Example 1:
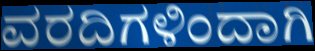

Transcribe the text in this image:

ವರದಿಗಳಿಂದಾಗಿ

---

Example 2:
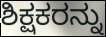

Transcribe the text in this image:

ಶಿಕ್ಷಕರನ್ನು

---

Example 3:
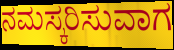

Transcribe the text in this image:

ನಮಸ್ಕರಿಸುವಾಗ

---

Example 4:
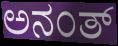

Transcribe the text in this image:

ಅನಂತ್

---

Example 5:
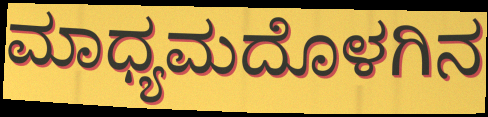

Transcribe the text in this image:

ಮಾಧ್ಯಮದೊಳಗಿನ